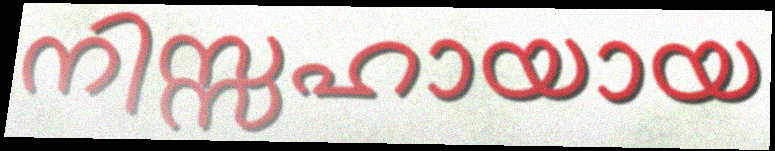
നിസ്സഹായായ